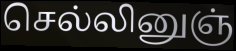
செல்லினுஞ்